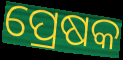
ପ୍ରେଷକ